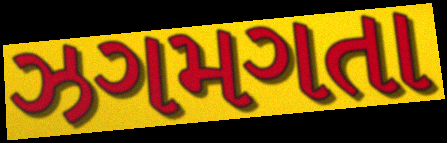
ઝગમગતા